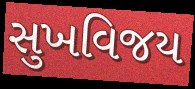
સુખવિજય